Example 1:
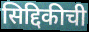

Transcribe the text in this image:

सिद्दिकीची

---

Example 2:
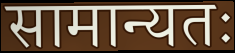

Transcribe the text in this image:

सामान्यतः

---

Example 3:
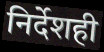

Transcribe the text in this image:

निर्देशही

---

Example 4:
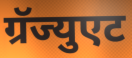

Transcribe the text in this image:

ग्रॅज्युएट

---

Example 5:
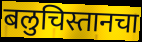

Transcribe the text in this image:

बलुचिस्तानचा